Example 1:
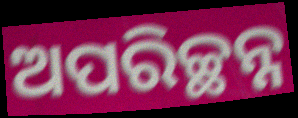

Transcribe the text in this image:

ଅପରିଚ୍ଛନ୍ନ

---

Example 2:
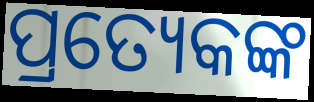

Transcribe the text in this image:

ପ୍ରତ୍ଯେକଙ୍କ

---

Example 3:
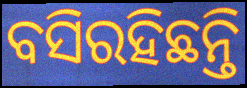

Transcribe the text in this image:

ବସିରହିଛନ୍ତି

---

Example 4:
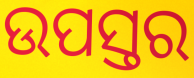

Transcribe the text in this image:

ଉପସ୍ତର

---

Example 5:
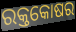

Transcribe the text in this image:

ରକ୍ତକୋଷର